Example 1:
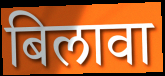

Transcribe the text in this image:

बिलावा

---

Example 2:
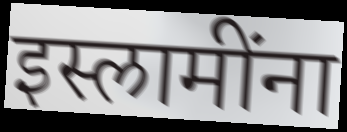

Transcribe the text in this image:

इस्लामींना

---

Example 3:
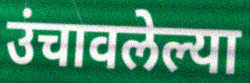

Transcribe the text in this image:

उंचावलेल्या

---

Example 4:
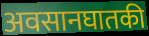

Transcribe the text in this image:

अवसानघातकी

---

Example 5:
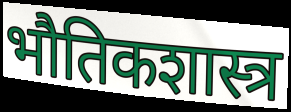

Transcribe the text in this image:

भौतिकशास्त्र